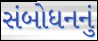
સંબોધનનું